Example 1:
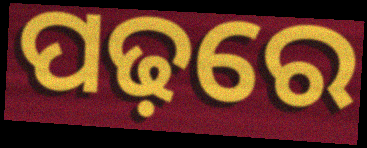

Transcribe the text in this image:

ପଢ଼ରେ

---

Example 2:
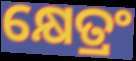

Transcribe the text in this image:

କ୍ଷେତ୍ରଂ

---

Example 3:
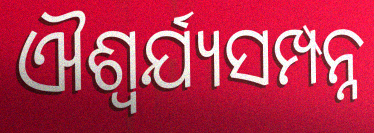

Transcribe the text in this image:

ଐଶ୍ୱର୍ଯ୍ୟସମ୍ପନ୍ନ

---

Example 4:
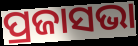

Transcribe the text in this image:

ପ୍ରଜାସଭା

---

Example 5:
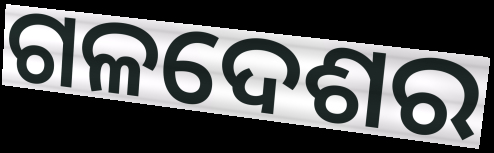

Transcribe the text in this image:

ଗଳଦେଶର